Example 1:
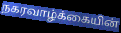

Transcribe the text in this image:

நகரவாழ்க்கையின்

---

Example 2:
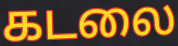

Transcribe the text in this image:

கடலை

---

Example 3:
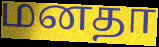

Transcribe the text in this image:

மனதா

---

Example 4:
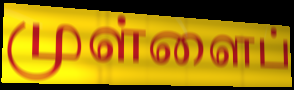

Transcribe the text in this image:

முள்ளைப்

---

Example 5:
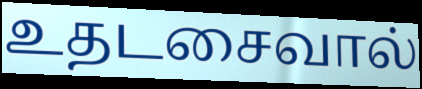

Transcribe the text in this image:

உதடசைவால்